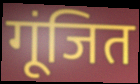
गूंजित